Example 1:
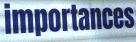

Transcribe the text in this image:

importances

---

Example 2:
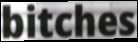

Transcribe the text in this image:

bitches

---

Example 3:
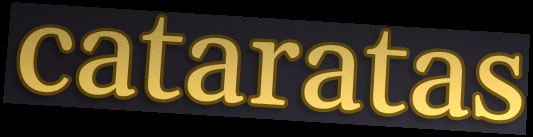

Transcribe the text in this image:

cataratas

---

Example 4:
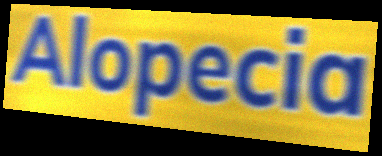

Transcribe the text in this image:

Alopecia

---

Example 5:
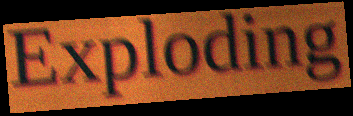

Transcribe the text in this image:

Exploding